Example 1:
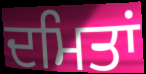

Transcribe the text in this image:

ਦਮਿਤਾਂ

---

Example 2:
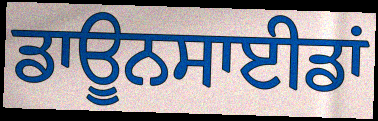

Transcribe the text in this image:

ਡਾਊਨਸਾਈਡਾਂ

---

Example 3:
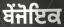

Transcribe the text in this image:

ਬੇਂਜੋਇਕ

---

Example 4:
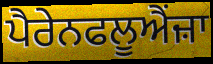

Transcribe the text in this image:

ਪੈਰੇਨਫਲੂਐਂਜ਼ਾ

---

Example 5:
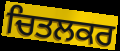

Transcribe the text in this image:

ਚਿਤਲਕਰ